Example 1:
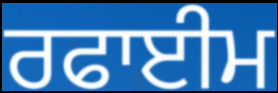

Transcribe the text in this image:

ਰਫਾਈਮ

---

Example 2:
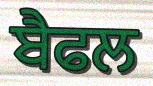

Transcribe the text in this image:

ਬੈਫਲ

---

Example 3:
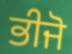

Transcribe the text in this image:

ਭੀਜੋ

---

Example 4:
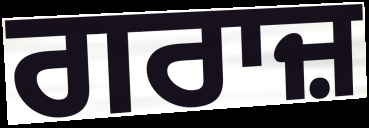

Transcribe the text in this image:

ਗਰਾਜ਼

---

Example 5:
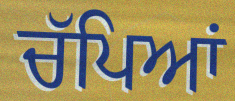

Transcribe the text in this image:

ਚੱਪਿਆਂ